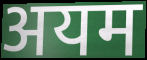
अयम